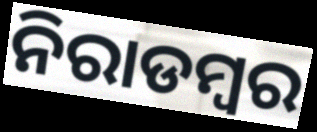
ନିରାଡମ୍ବର